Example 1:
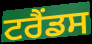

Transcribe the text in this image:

ਟਰੈਂਡਸ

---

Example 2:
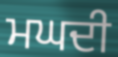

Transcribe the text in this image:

ਮਘਦੀ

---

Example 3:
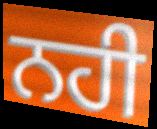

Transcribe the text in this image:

ਨਹੀ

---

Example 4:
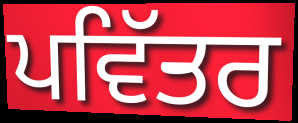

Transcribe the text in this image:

ਪਵਿੱਤਰ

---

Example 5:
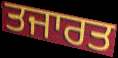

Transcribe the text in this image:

ਤਜਾਰਤ